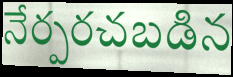
నేర్పరచబడిన